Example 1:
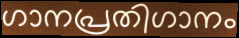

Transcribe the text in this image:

ഗാനപ്രതിഗാനം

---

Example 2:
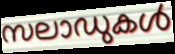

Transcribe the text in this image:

സലാഡുകൾ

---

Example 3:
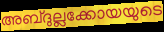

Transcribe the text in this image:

അബ്ദുല്ലക്കോയയുടെ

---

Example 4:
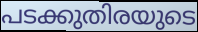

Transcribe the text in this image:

പടക്കുതിരയുടെ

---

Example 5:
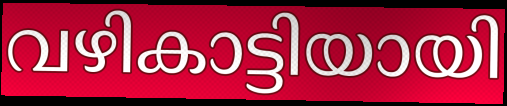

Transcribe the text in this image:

വഴികാട്ടിയായി